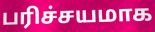
பரிச்சயமாக